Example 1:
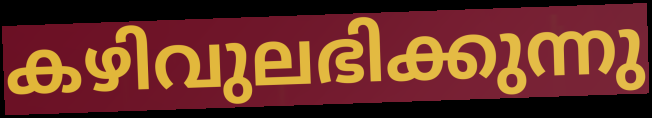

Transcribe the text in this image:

കഴിവുലഭിക്കുന്നു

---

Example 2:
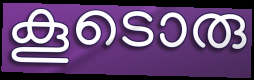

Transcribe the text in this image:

കൂടൊരു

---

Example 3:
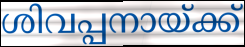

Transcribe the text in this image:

ശിവപ്പനായ്ക്ക്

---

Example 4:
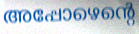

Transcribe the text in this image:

അപ്പോഴെന്റെ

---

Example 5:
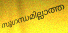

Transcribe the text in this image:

സുഗന്ധമില്ലാത്ത